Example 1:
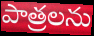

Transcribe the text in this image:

పాత్రలను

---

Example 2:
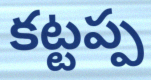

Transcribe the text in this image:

కట్టప్ప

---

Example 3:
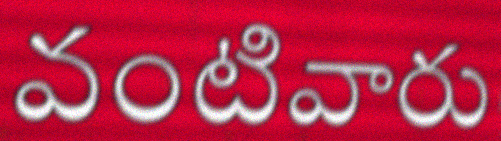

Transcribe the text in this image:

వంటివారు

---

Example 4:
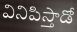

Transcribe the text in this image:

వినిపిస్తాడో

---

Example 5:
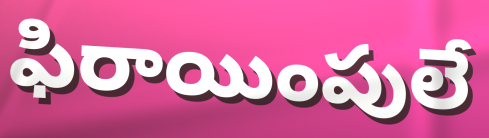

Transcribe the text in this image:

ఫిరాయింపులే